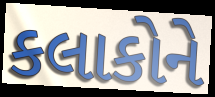
કલાકોને